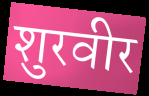
शुरवीर